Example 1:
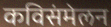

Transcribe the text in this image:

कविसंमेलन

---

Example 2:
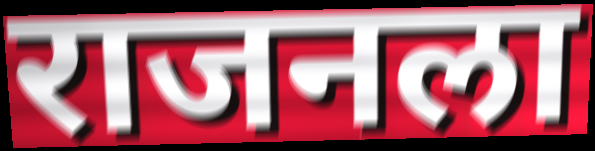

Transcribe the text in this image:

राजनला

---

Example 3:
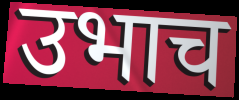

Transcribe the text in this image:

उभाच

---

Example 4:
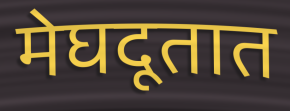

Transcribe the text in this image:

मेघदूतात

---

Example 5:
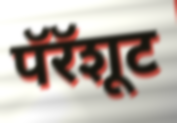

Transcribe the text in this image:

पॅरॅशूट